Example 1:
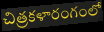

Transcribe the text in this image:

చిత్రకళారంగంలో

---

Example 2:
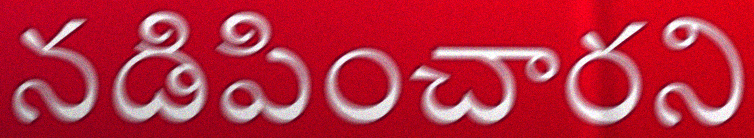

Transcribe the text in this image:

నడిపించారని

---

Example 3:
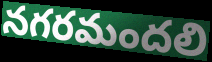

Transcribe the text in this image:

నగరమందలి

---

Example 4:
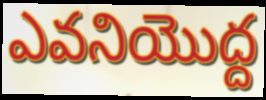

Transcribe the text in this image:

ఎవనియొద్ద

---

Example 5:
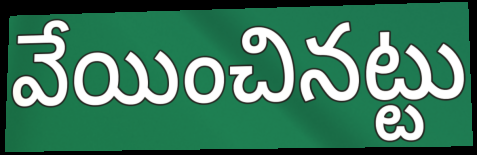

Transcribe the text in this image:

వేయించినట్టు